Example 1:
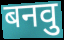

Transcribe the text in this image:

बनवु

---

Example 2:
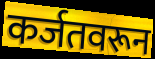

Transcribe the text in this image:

कर्जतवरून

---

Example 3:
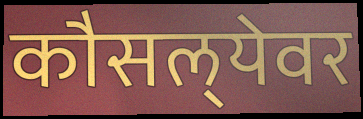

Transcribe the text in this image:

कौसल्येवर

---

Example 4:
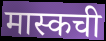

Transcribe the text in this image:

मास्कची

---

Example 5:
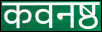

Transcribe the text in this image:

कवनष्ठ